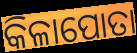
କିଳାପୋତା